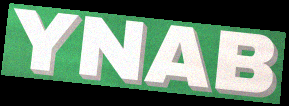
YNAB